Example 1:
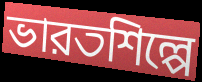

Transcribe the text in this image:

ভারতশিল্পে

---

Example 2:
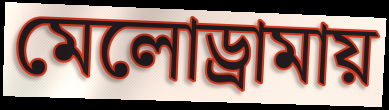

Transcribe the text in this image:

মেলোড্রামায়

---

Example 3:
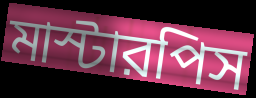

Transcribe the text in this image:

মাস্টারপিস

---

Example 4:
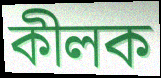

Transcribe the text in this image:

কীলক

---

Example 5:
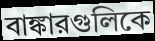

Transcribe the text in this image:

বাঙ্কারগুলিকে